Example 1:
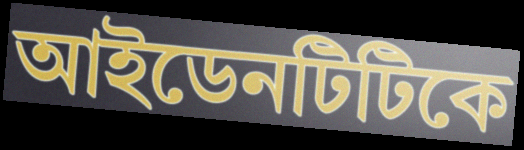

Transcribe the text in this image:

আইডেনটিটিকে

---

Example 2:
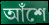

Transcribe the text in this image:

আঁশে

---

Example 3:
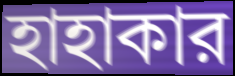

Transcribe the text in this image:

হাহাকার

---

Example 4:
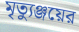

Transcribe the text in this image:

মৃত্যুঞ্জয়ের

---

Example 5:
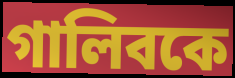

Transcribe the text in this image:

গালিবকে